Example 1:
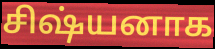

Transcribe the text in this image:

சிஷ்யனாக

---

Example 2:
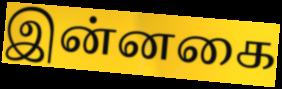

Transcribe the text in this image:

இன்னகை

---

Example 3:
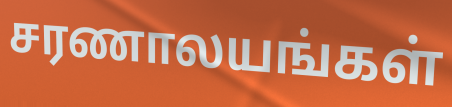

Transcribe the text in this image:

சரணாலயங்கள்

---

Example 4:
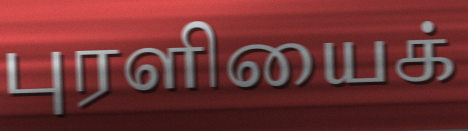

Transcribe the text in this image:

புரளியைக்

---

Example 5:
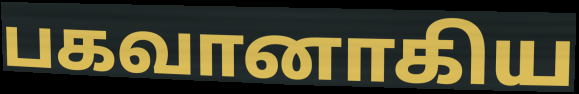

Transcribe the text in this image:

பகவானாகிய